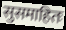
सुसमाहितः